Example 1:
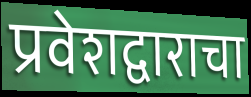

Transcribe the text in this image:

प्रवेशद्वाराचा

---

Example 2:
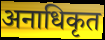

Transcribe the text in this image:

अनाधिकृत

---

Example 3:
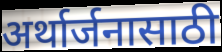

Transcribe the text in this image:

अर्थार्जनासाठी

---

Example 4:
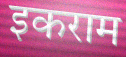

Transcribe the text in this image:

इकराम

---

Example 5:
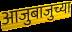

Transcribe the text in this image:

आजुबाजुच्या